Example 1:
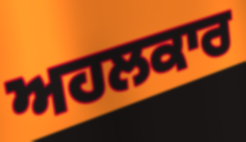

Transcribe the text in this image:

ਅਹਲਕਾਰ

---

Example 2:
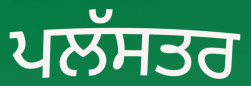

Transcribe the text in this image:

ਪਲੱਸਤਰ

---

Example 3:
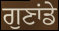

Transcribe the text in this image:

ਗੁਣਾਂਡੇ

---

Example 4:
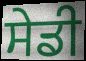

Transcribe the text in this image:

ਸੇਡੀ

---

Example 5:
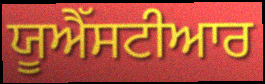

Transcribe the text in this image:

ਯੂਐੱਸਟੀਆਰ